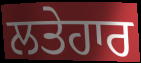
ਲਤੇਹਾਰ